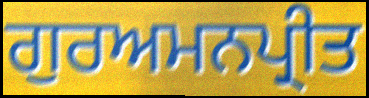
ਗੁਰਅਮਨਪ੍ਰੀਤ